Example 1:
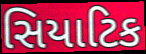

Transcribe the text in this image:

સિયાટિક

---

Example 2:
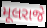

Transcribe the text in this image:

મૂલરાજે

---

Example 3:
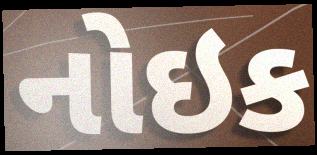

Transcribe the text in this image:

નોઇક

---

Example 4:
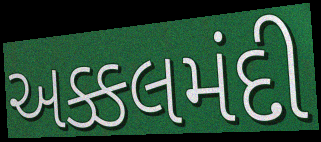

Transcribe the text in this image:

અક્કલમંદી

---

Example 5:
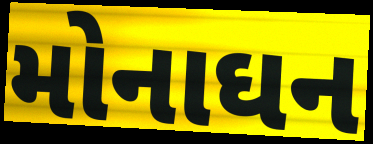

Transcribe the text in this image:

મોનાઘન